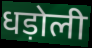
धड़ोली